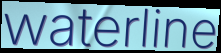
waterline